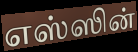
எஸ்ஸின்